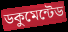
ডকুমেন্টেড